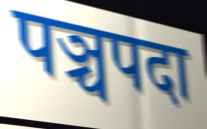
पञ्चपदा